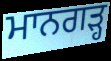
ਮਾਨਗੜ੍ਹ